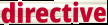
directive